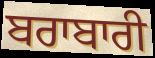
ਬਰਾਬਾਰੀ